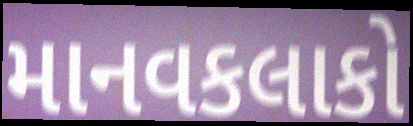
માનવકલાકો